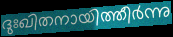
ദുഃഖിതനായിത്തീർന്നു